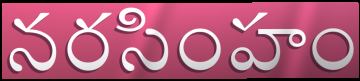
నరసింహం